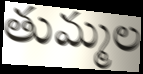
తుమ్మల